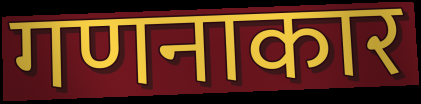
गणनाकार